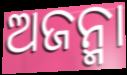
ଅଜନ୍ମା